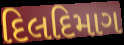
દિલદિમાગ